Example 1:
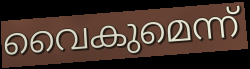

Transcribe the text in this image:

വൈകുമെന്ന്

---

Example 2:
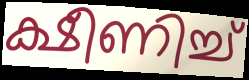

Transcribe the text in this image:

ക്ഷീണിച്ച്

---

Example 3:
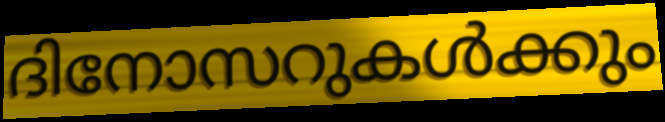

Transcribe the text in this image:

ദിനോസറുകൾക്കും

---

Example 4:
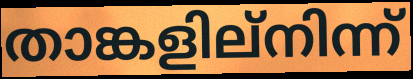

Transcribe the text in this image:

താങ്കളില്നിന്ന്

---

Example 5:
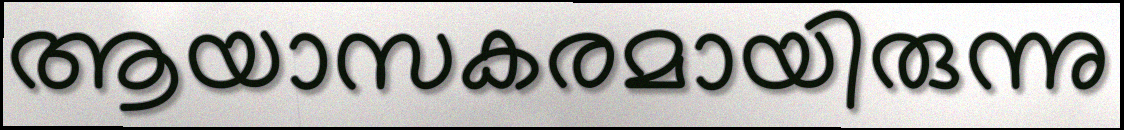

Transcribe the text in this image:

ആയാസകരമായിരുന്നു